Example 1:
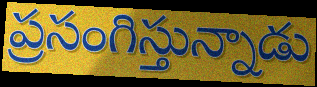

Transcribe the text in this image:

ప్రసంగిస్తున్నాడు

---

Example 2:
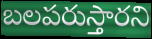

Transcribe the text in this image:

బలపరుస్తారని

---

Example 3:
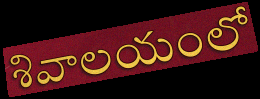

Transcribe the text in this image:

శివాలయంలో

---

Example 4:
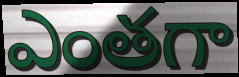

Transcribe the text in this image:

ఎంతగా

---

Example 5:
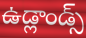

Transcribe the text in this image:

ఉడ్లాండ్స్